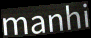
manhi